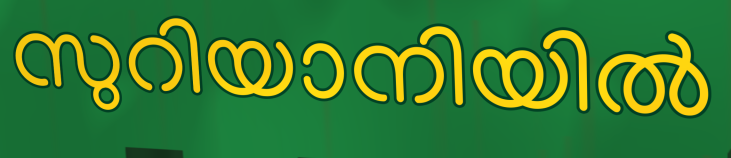
സുറിയാനിയിൽ